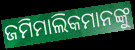
ଜମିମାଲିକମାନଙ୍କୁ